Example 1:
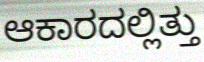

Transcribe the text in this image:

ಆಕಾರದಲ್ಲಿತ್ತು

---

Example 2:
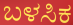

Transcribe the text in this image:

ಬಳಸಿಕ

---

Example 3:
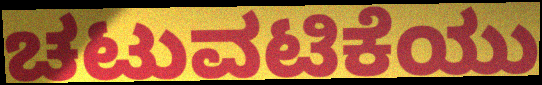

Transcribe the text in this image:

ಚಟುವಟಿಕೆಯು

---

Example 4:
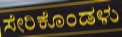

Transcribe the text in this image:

ಸೇರಿಕೊಂಡಳು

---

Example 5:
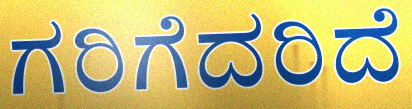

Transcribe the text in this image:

ಗರಿಗೆದರಿದೆ